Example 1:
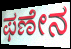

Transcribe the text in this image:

ಫಣೇನ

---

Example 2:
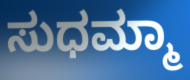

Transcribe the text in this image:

ಸುಧಮ್ಮಾ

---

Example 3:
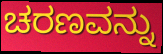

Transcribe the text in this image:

ಚರಣವನ್ನು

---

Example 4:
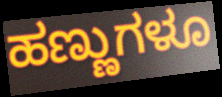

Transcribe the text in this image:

ಹಣ್ಣುಗಳೂ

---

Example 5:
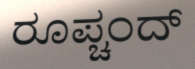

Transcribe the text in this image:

ರೂಪ್ಚಂದ್